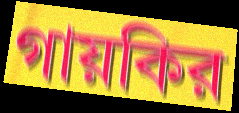
গায়কির